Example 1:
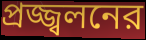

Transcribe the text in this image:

প্রজ্জ্বলনের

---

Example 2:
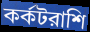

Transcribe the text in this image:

কর্কটরাশি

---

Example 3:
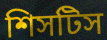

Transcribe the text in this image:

শিসটিস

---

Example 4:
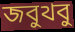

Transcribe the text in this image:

জবুথবু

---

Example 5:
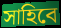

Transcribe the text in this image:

সাহিবে